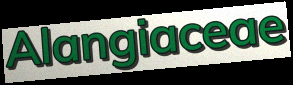
Alangiaceae